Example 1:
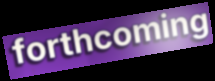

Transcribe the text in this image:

forthcoming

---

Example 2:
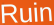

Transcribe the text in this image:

Ruin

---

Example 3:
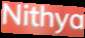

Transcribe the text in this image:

Nithya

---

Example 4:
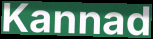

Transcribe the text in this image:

Kannad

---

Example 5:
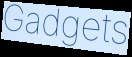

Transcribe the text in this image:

Gadgets